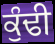
ਕੁੰਢੀ